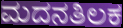
ಮದನತಿಲಕ